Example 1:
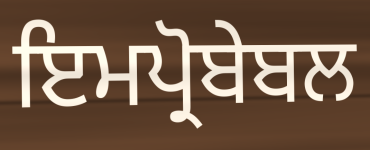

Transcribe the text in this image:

ਇਮਪ੍ਰੋਬੇਬਲ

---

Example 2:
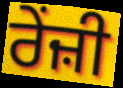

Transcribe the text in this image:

ਰੇਂਜ਼ੀ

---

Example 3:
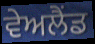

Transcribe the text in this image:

ਵੇਅਲੈਂਡ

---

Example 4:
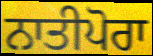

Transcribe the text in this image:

ਨਾਤੀਪੋਰਾ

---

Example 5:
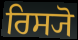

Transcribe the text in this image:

ਰਿਸ੍ਯੋ